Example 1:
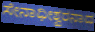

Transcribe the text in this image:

ಸೇನಾಧೀಶ್ವರನಾದ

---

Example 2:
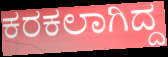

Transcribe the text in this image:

ಕರಕಲಾಗಿದ್ದ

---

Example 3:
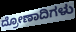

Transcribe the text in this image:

ದ್ರೋಣಾದಿಗಳು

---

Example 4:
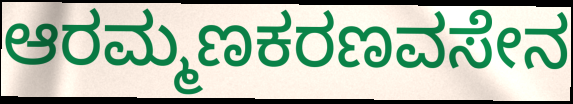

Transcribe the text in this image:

ಆರಮ್ಮಣಕರಣವಸೇನ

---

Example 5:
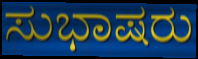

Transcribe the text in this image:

ಸುಭಾಷರು